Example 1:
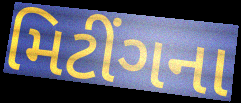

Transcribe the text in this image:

મિટીંગના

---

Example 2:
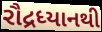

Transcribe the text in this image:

રૌદ્રધ્યાનથી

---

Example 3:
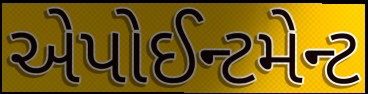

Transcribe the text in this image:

એપોઈન્ટમેન્ટ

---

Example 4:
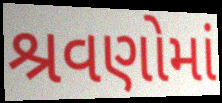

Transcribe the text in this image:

શ્રવણોમાં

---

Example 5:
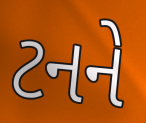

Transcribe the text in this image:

ટનને